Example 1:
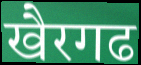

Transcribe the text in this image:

खैरगढ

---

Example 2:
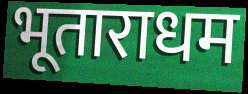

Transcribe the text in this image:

भूताराधम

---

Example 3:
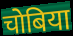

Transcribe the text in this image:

चोबिया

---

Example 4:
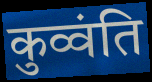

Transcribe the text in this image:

कुव्वंति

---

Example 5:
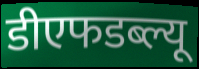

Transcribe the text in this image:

डीएफडब्ल्यू